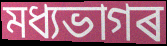
মধ্যভাগৰ